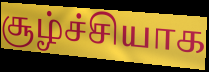
சூழ்ச்சியாக